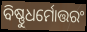
ବିଷ୍ଣୁଧର୍ମୋତ୍ତରଂ